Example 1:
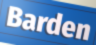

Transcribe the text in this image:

Barden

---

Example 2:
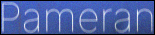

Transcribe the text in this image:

Pameran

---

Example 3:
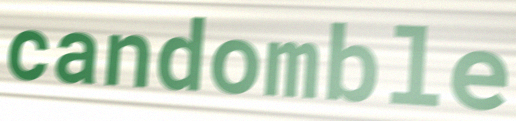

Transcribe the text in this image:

candomble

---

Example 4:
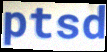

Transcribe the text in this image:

ptsd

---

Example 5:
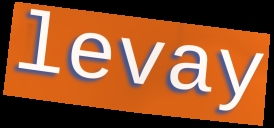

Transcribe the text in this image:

levay